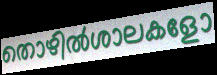
തൊഴിൽശാലകളോ